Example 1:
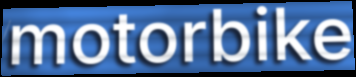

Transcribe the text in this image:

motorbike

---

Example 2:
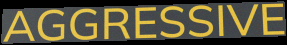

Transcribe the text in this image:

AGGRESSIVE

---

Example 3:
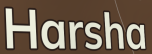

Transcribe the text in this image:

Harsha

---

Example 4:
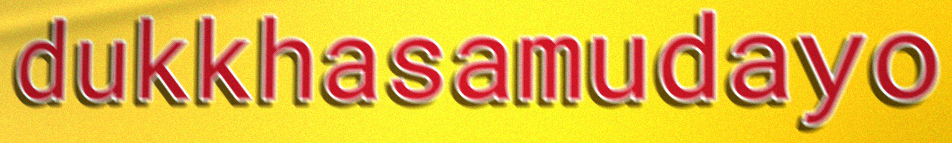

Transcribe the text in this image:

dukkhasamudayo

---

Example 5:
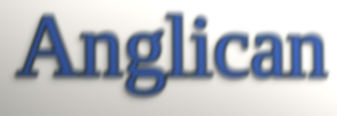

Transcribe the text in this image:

Anglican